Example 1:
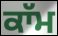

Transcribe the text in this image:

ਕਾੱਮ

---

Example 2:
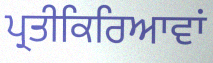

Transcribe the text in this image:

ਪ੍ਰਤੀਕਿਰਿਆਵਾਂ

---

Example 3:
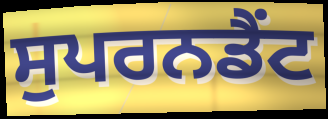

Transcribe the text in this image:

ਸੁਪਰਨਡੈਂਟ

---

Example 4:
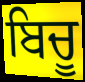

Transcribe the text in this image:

ਬਿਚੂ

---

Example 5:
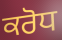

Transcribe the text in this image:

ਕਰੋਧ